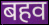
बहव